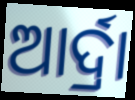
ଆର୍ଦ୍ରା